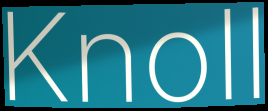
Knoll